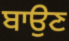
ਬਾਉਣ